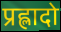
प्रह्लादो